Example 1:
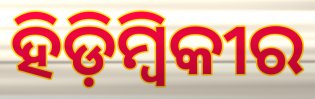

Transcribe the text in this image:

ହିଡ଼ିମ୍ବିକୀର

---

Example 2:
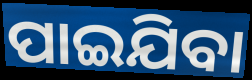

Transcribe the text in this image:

ପାଇଯିବା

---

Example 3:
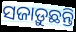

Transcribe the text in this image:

ସଜାଡ଼ୁଛନ୍ତି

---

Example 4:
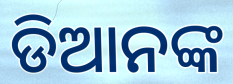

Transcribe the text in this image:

ଡିଆନଙ୍କ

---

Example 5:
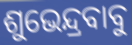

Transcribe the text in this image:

ଶୁଭେନ୍ଦ୍ରବାବୁ